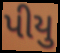
પીયુ